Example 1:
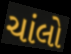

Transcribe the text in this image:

ચાંલો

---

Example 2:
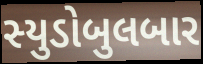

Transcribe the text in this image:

સ્યુડોબુલબાર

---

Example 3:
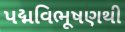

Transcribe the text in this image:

પદ્મવિભૂષણથી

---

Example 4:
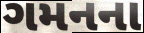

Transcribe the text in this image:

ગમનના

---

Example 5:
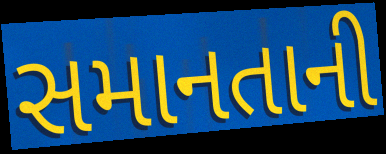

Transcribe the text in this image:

સમાનતાની